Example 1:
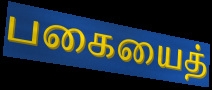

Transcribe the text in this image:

பகையைத்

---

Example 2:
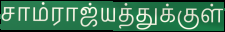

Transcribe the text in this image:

சாம்ராஜ்யத்துக்குள்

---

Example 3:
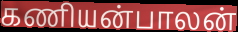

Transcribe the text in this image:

கணியன்பாலன்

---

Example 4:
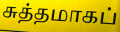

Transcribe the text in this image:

சுத்தமாகப்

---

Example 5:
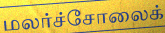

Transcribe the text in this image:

மலர்ச்சோலைக்